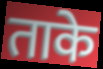
ताके